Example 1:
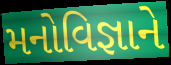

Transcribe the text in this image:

મનોવિજ્ઞાને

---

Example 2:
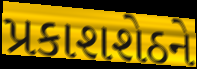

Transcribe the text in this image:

પ્રકાશશેઠને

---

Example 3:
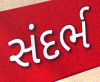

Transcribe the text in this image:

સંદર્ભ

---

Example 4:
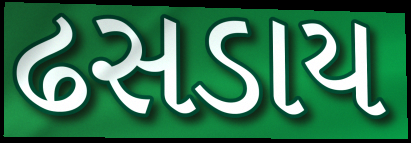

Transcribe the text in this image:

ઢસડાય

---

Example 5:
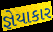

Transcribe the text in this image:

જ્ઞેયાકાર